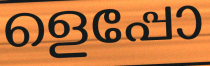
ളെപ്പോ